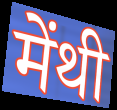
मेंथी